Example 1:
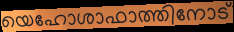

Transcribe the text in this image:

യെഹോശാഫാത്തിനോട്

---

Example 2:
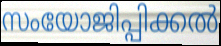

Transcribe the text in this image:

സംയോജിപ്പിക്കൽ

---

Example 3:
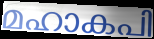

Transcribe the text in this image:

മഹാകപി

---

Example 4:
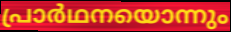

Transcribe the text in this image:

പ്രാർഥനയൊന്നും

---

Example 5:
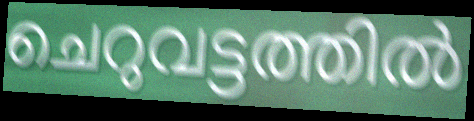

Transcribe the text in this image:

ചെറുവട്ടത്തിൽ